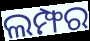
ଲମ୍ଫର